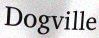
Dogville